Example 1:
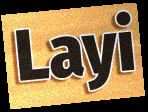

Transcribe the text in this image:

Layi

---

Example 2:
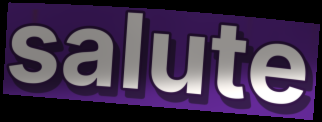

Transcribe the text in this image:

salute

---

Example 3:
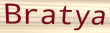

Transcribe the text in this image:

Bratya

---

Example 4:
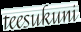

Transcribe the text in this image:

teesukuni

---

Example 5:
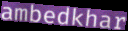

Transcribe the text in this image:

ambedkhar